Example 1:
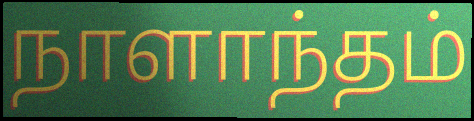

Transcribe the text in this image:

நாளாந்தம்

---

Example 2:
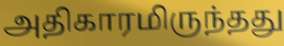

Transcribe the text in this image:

அதிகாரமிருந்தது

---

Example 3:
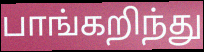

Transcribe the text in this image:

பாங்கறிந்து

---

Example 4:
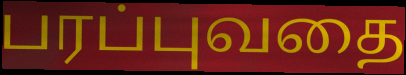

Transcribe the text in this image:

பரப்புவதை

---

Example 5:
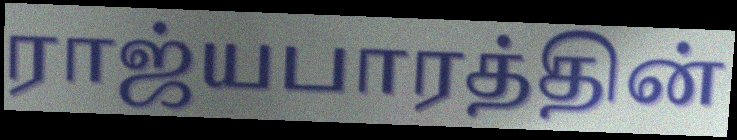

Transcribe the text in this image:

ராஜ்யபாரத்தின்